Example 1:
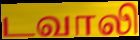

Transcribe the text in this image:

டவாலி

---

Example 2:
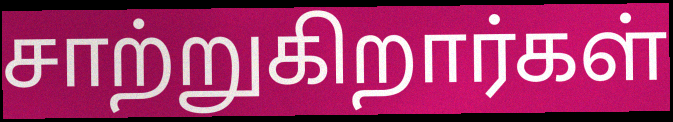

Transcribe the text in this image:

சாற்றுகிறார்கள்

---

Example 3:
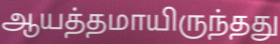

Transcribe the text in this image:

ஆயத்தமாயிருந்தது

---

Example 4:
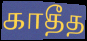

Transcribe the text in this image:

காதீத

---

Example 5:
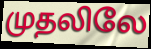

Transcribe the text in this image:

முதலிலே